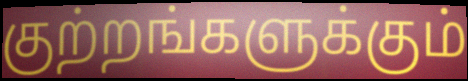
குற்றங்களுக்கும்